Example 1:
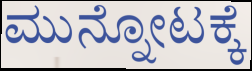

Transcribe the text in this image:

ಮುನ್ನೋಟಕ್ಕೆ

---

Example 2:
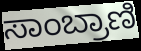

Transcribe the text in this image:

ಸಾಂಬ್ರಾಣಿ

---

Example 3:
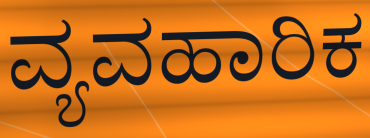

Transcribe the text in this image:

ವ್ಯವಹಾರಿಕ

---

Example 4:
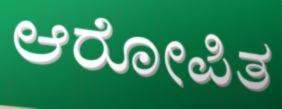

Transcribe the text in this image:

ಆರೋಪಿತ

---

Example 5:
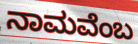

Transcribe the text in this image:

ನಾಮವೆಂಬ